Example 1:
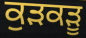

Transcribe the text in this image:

ਕੁੜਕੜੂ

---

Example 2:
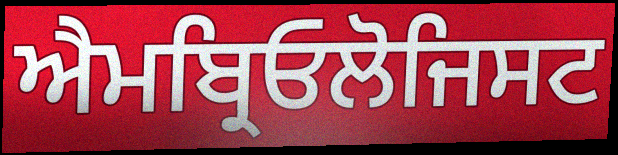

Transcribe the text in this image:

ਐਮਬ੍ਰਿਓਲੋਜਿਸਟ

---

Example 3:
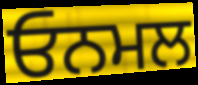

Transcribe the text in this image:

ਓਨਮਲ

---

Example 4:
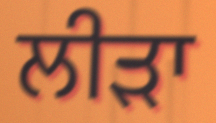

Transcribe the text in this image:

ਲੀੜਾ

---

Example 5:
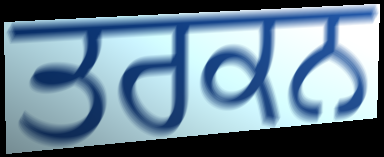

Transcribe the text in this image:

ਤਰਕਨ